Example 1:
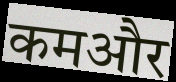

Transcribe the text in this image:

कमऔर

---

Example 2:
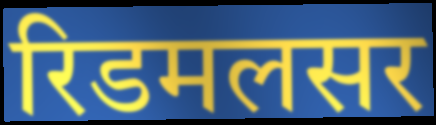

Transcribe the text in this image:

रिडमलसर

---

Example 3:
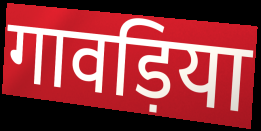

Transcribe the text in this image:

गावड़िया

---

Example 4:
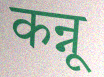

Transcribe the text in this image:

कन्नू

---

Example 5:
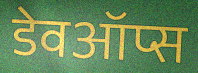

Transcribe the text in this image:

डेवऑप्स